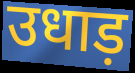
उधाड़